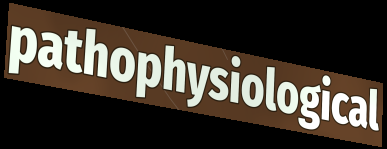
pathophysiological